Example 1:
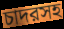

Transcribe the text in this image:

চাদরসহ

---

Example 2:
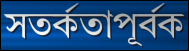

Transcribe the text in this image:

সতর্কতাপূর্বক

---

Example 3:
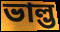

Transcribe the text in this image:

ভাল্ভ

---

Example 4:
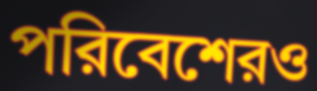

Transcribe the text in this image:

পরিবেশেরও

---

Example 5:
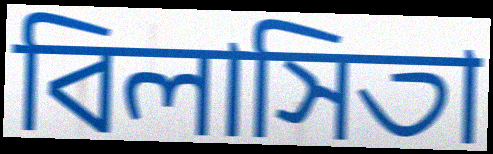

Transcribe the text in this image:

বিলাসিতা